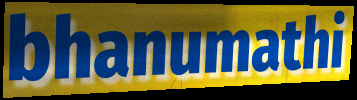
bhanumathi